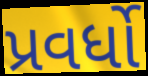
પ્રવર્ધો